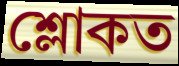
শ্লোকত